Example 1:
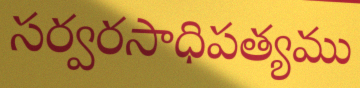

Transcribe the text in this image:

సర్వరసాధిపత్యము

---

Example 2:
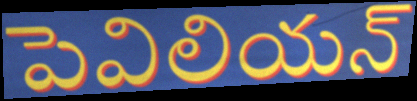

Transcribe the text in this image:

పెవిలియన్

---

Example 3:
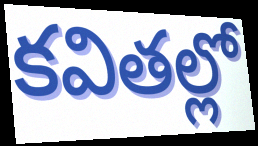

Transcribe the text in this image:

కవితల్లో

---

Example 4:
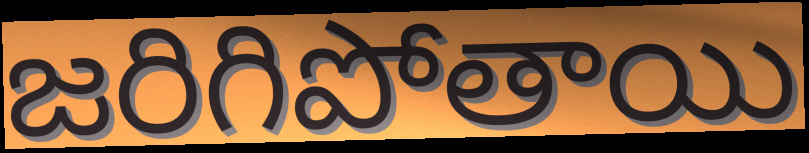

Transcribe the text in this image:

జరిగిపోతాయి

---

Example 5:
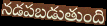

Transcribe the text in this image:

నడపబడుతుంది